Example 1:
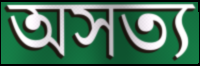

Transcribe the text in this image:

অসত্য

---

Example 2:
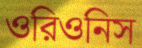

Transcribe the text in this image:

ওরিওনিস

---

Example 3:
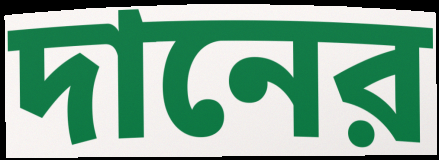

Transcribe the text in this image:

দানের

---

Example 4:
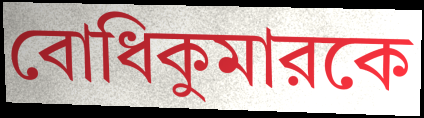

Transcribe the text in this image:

বোধিকুমারকে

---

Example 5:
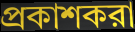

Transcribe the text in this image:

প্রকাশকরা